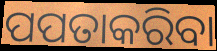
ପପତାକରିବା